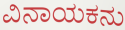
ವಿನಾಯಕನು